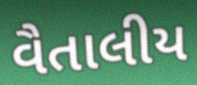
વૈતાલીય